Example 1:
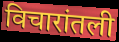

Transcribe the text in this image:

विचारांतली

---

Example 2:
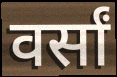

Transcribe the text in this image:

वर्सां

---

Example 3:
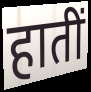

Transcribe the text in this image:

हातीं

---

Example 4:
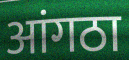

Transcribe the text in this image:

आंगठा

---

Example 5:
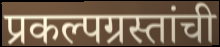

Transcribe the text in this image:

प्रकल्पग्रस्तांची